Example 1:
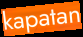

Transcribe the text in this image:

kapatan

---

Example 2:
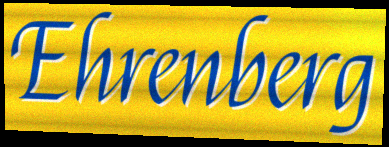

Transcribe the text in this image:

Ehrenberg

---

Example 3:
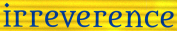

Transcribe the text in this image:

irreverence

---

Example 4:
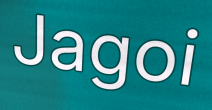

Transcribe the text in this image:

Jagoi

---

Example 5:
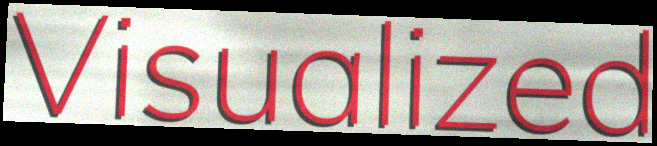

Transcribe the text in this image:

Visualized